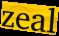
zeal